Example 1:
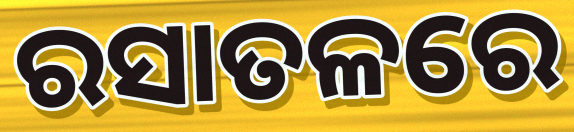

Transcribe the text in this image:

ରସାତଳରେ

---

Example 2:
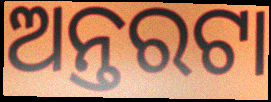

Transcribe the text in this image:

ଅନ୍ତରଟା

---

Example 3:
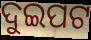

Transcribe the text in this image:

ଦୁଇପଟ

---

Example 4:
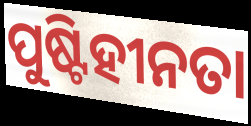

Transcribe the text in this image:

ପୁଷ୍ଟିହୀନତା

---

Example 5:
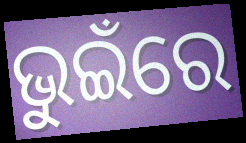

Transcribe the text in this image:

ଭୁଇଁରେ